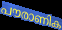
പൗരാണിക